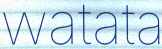
watata